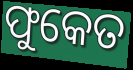
ଫୁକେତ